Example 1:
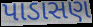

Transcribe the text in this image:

પાડાસણ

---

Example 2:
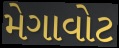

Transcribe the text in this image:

મેગાવોટ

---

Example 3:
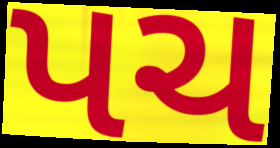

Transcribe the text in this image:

પચ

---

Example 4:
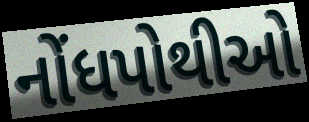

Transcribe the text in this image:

નોંધપોથીઓ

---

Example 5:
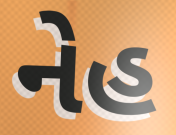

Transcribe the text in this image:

નેહ